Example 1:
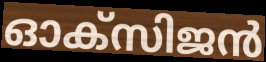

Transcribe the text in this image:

ഓക്സിജൻ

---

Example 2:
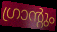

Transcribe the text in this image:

ഗ്രാന്റും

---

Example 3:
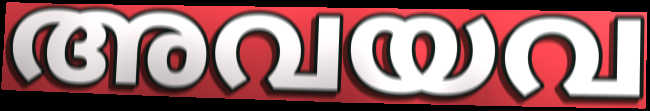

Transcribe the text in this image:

അവയവ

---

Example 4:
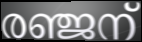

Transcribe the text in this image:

രഞ്ജന്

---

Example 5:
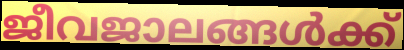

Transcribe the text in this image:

ജീവജാലങ്ങൾക്ക്